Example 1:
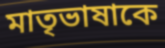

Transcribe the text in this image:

মাতৃভাষাকে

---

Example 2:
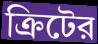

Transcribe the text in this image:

ক্রিটের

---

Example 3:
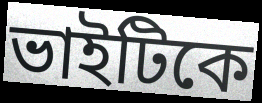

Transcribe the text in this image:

ভাইটিকে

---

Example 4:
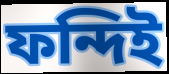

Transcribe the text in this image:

ফন্দিই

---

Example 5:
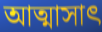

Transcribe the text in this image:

আত্মাসাৎ